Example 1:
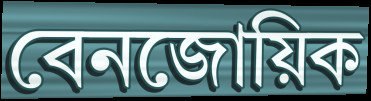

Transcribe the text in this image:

বেনজোয়িক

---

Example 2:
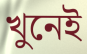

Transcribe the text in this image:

খুনেই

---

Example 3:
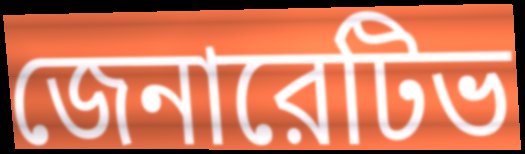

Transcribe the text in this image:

জেনারেটিভ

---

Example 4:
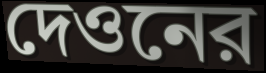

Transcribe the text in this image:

দেওনের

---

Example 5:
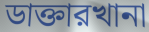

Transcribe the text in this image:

ডাক্তারখানা